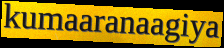
kumaaranaagiya